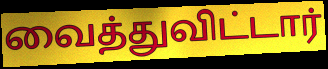
வைத்துவிட்டார்